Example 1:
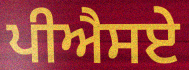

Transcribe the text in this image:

ਪੀਐਸਏ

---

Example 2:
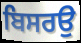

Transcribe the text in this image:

ਬਿਸਰਉ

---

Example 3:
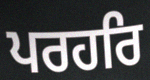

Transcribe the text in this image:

ਪਰਹਰਿ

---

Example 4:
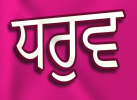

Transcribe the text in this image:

ਧਰੁਵ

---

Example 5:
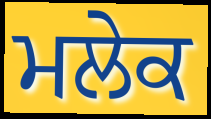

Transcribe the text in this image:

ਮਲੇਕ